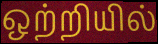
ஒற்றியில்